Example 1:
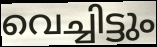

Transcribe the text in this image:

വെച്ചിട്ടും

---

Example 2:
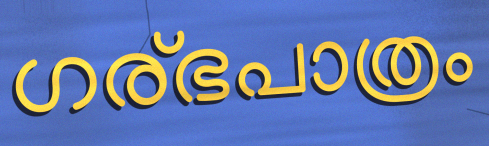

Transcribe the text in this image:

ഗര്ഭപാത്രം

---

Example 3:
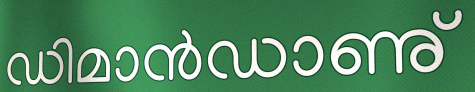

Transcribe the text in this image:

ഡിമാൻഡാണു്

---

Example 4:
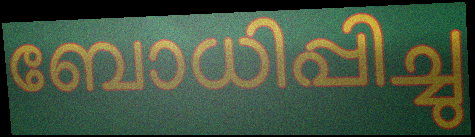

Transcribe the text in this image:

ബോധിപ്പിച്ചു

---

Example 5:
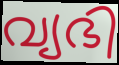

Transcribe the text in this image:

വ്യഭി